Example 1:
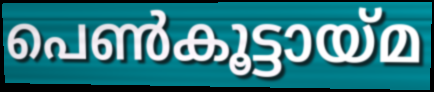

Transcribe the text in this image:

പെൺകൂട്ടായ്മ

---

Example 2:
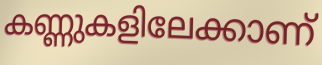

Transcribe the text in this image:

കണ്ണുകളിലേക്കാണ്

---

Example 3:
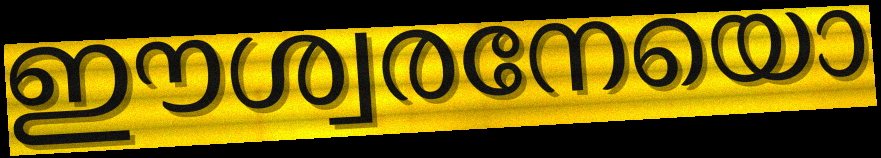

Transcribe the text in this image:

ഈശ്വരനേയൊ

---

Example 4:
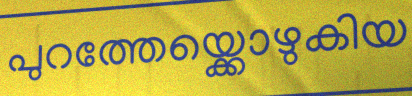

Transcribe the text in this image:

പുറത്തേയ്ക്കൊഴുകിയ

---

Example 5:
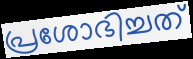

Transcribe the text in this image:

പ്രശോഭിച്ചത്